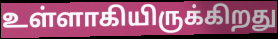
உள்ளாகியிருக்கிறது